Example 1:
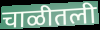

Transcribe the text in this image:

चाळीतली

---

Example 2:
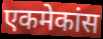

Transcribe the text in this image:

एकमेकांस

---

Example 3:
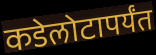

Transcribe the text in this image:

कडेलोटापर्यंत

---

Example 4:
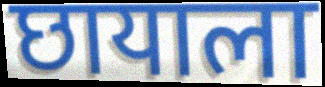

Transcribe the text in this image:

छायाला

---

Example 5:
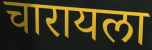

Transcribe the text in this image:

चारायला